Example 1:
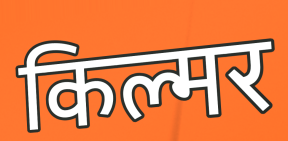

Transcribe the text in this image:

किल्मर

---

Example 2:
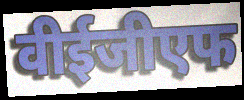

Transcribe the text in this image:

वीईजीएफ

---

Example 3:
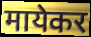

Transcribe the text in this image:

मायेकर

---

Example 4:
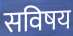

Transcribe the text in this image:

सविषय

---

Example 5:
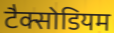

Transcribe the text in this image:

टैक्सोडियम